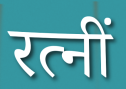
रत्नीं